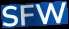
SFW